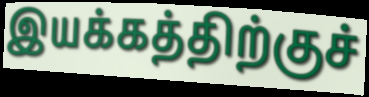
இயக்கத்திற்குச்